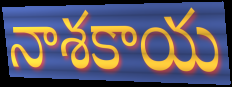
నాశకాయ